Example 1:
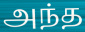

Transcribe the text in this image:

அந்த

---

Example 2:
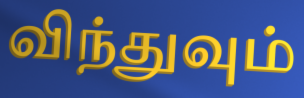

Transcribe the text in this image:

விந்துவும்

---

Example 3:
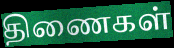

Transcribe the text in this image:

திணைகள்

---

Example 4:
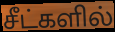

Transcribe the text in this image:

சீட்களில்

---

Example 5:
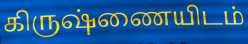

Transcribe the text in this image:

கிருஷ்ணையிடம்